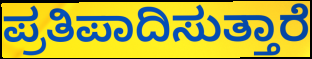
ಪ್ರತಿಪಾದಿಸುತ್ತಾರೆ